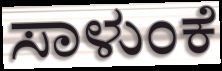
ಸಾಳುಂಕೆ